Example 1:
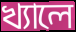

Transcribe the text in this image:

খ্যালে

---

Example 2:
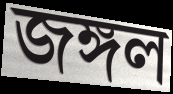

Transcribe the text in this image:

জঙ্গল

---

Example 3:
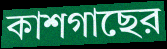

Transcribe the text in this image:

কাশগাছের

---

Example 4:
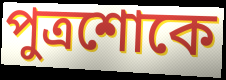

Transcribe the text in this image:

পুত্রশোকে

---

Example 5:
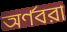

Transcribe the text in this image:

অর্ণবরা